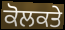
ਕੋਲਕਤੇ